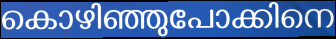
കൊഴിഞ്ഞുപോക്കിനെ